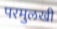
परमुलखी